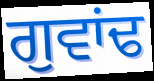
ਗੁਵਾਂਢ